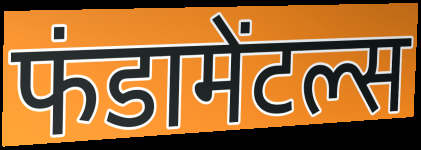
फंडामेंटल्स